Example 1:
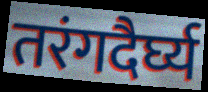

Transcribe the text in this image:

तरंगदैर्घ्य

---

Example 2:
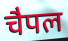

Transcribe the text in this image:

चैपल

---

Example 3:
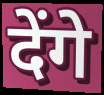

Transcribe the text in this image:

देंगे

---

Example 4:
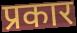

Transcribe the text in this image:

प्रकार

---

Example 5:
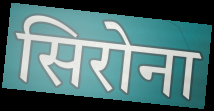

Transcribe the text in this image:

सिरोना